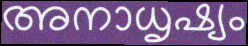
അനാധൃഷ്യം